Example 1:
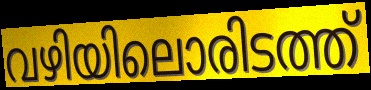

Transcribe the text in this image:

വഴിയിലൊരിടത്ത്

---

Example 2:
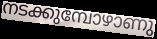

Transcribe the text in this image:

നടക്കുമ്പോഴാണു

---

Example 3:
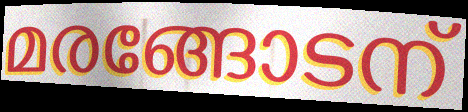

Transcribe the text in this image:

മരങ്ങോടന്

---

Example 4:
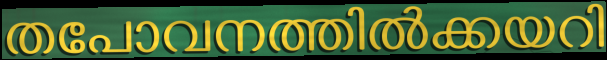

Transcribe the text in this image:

തപോവനത്തിൽക്കയറി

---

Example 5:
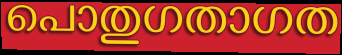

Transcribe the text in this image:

പൊതുഗതാഗത